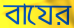
বাযের